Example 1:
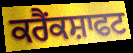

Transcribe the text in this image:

ਕਰੈਂਕਸ਼ਾਫਟ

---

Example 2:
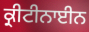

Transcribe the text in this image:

ਕ੍ਰੀਟੀਨਾਈਨ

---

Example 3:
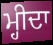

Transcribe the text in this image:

ਮ੍ਹੀਦਾ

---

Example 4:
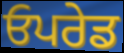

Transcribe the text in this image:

ਓਪਰੇਡ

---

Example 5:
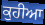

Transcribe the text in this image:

ਕੁਹੀਆ